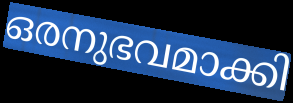
ഒരനുഭവമാക്കി